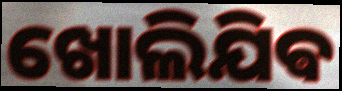
ଖୋଲିଯିଵ